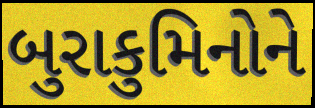
બુરાકુમિનોને